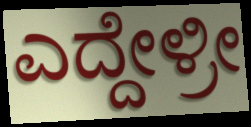
ಎದ್ದೇಳ್ರೀ